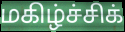
மகிழ்ச்சிக்